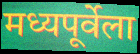
मध्यपूर्वेला